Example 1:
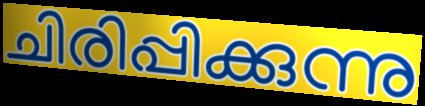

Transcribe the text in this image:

ചിരിപ്പിക്കുന്നു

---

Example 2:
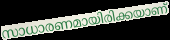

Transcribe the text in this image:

സാധാരണമായിരിക്കയാണ്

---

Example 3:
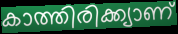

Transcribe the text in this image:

കാത്തിരിക്ക്യാണ്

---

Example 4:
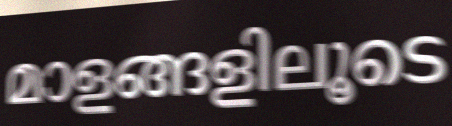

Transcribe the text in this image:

മാളങ്ങളിലൂടെ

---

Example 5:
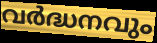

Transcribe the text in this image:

വർദ്ധനവും